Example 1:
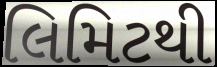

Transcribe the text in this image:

લિમિટથી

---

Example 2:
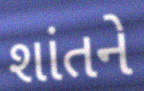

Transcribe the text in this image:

શાંતને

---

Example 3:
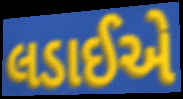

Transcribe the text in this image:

લડાઈએ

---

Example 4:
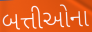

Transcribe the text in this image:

બત્તીઓના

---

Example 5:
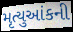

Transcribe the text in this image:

મૃત્યુઆંકની